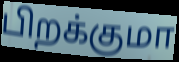
பிறக்குமா